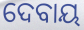
ଦେବାୟ